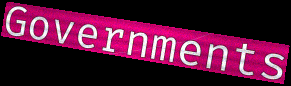
Governments